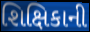
શિક્ષિકાની